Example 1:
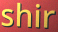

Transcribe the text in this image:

shir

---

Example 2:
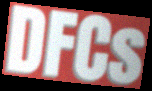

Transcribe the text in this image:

DFCs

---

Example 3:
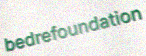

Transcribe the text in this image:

bedrefoundation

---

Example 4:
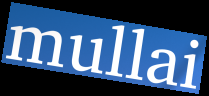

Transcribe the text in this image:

mullai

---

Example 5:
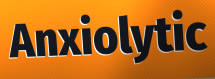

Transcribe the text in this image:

Anxiolytic